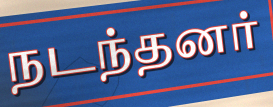
நடந்தனர்